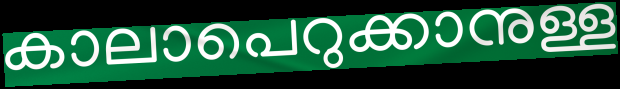
കാലാപെറുക്കാനുള്ള